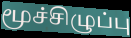
மூச்சிழுப்பு